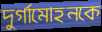
দুর্গামোহনকে